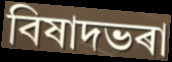
বিষাদভৰা